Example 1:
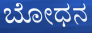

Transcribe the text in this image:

ಬೋಧನ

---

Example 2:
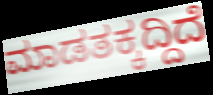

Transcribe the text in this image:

ಮಾಡತಕ್ಕದ್ದಿದೆ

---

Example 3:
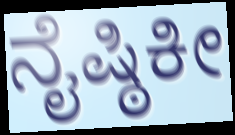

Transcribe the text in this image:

ನೈಷ್ಠಿಕೀ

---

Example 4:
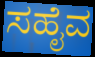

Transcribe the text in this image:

ಸಹೈವ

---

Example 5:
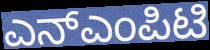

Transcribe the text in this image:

ಎನ್ಎಂಪಿಟಿ